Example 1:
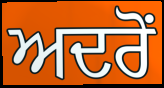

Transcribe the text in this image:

ਅਦਰੋਂ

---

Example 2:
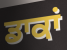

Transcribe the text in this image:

ਡਾਕਾਂ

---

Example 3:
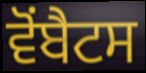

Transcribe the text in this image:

ਵੋਂਬੈਟਸ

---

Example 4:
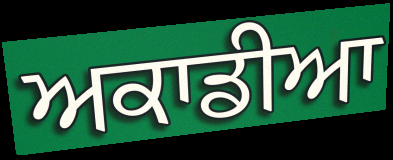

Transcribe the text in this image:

ਅਕਾਡੀਆ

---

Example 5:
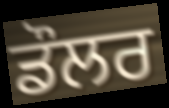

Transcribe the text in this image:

ਡੌਲਰ